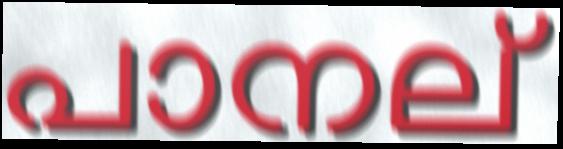
പാനല്